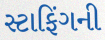
સ્ટાફિંગની